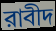
রাবীদ